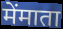
मेंमाता